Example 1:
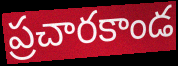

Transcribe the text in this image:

ప్రచారకాండ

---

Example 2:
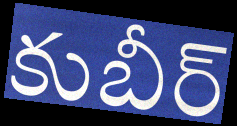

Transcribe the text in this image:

కుబీర్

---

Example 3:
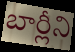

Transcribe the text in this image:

బార్లీని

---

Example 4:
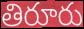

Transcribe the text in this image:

తిరూరు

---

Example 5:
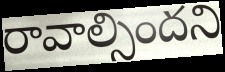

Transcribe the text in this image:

రావాల్సిందని